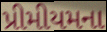
પ્રીમીયમના